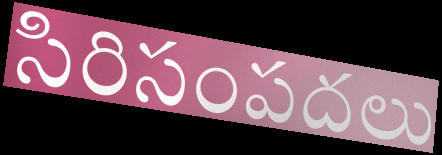
సిరిసంపదలు